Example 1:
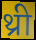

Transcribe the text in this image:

थ्री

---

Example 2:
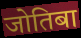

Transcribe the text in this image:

जोतिबा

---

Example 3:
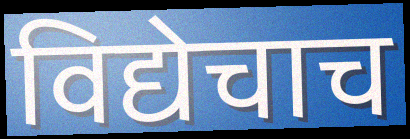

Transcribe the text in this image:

विद्येचाच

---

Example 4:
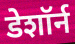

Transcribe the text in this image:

डेशॉर्न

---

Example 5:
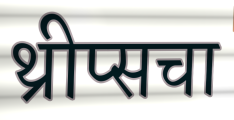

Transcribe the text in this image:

थ्रीप्सचा